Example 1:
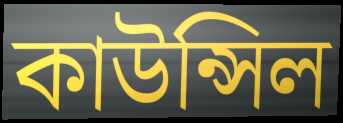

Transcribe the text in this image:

কাউন্সিল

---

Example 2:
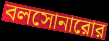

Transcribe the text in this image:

বলসোনারোর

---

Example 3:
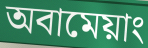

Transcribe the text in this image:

অবামেয়াং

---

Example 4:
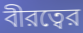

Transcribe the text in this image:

বীরত্বের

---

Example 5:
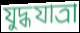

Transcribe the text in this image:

যুদ্ধযাত্রা